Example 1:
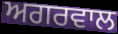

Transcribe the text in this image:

ਅਗਰਵਾਲ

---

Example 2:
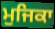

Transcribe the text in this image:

ਮੁਜਿਕਾ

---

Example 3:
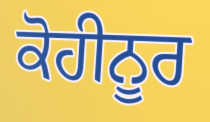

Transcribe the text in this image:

ਕੋਹੀਨੂਰ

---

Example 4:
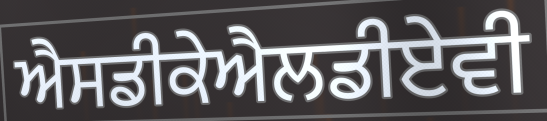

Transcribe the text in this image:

ਐਸਡੀਕੇਐਲਡੀਏਵੀ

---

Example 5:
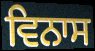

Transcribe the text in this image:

ਵਿਨਾਸ